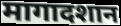
मागादशान